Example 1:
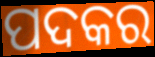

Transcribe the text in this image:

ପଦକର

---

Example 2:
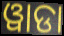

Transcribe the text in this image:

ୱାଡା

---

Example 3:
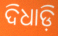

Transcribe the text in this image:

ଦିଧାଡ଼ି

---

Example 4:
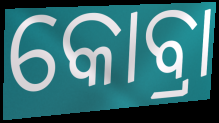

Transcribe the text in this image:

କୋବ୍ରା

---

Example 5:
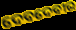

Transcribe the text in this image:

ଦେବଦେବୀର